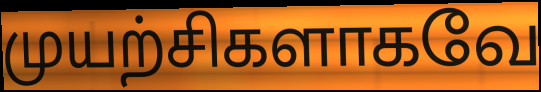
முயற்சிகளாகவே